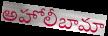
అహోలీబామా